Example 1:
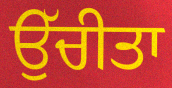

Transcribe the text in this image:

ਉੱਚੀਤਾ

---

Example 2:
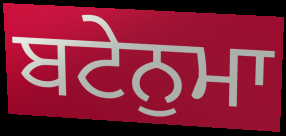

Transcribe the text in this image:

ਬਟੇਨੁਮਾ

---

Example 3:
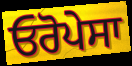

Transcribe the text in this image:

ਓਰੋਪੇਸਾ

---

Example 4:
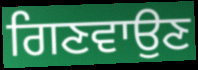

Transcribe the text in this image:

ਗਿਣਵਾਉਣ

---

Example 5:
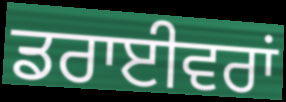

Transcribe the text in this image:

ਡਰਾਈਵਰਾਂ